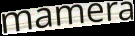
mamera